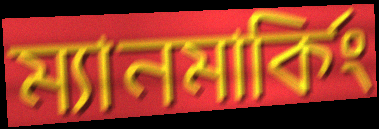
ম্যানমার্কিং